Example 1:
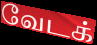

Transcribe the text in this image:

வேடக்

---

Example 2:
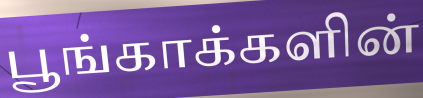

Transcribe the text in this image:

பூங்காக்களின்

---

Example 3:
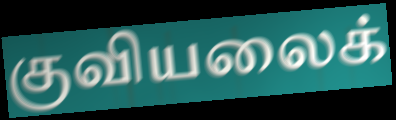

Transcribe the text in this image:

குவியலைக்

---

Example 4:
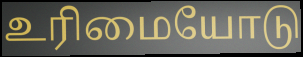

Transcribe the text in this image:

உரிமையோடு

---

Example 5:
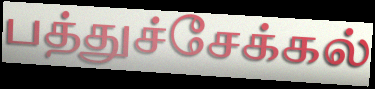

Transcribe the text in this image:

பத்துச்சேக்கல்